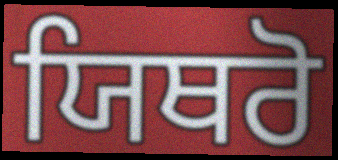
ਯਿਥਰੋ